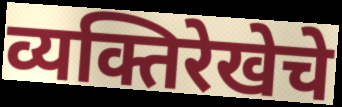
व्यक्तिरेखेचे